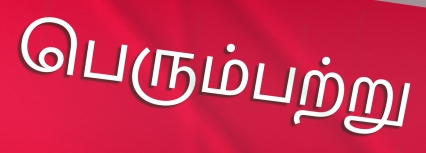
பெரும்பற்று